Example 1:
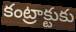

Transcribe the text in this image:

కంట్రాక్టుకు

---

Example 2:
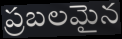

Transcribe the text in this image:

ప్రబలమైన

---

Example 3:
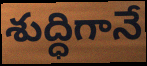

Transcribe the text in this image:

శుద్ధిగానే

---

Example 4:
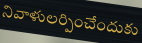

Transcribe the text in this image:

నివాళులర్పించేందుకు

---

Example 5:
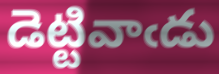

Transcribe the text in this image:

డెట్టివాఁడు